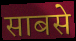
साबसे